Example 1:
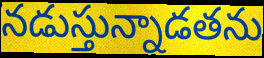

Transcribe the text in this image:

నడుస్తున్నాడతను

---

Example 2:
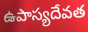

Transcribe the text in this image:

ఉపాస్యదేవత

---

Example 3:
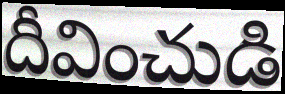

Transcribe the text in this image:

దీవించుడి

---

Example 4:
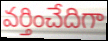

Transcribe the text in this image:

వర్తించేదిగా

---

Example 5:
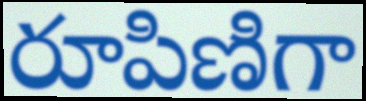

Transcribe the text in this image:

రూపిణిగా